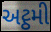
અટ્ઠમી